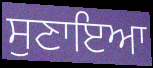
ਸੁਣਾਇਆ